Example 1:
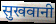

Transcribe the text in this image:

सुखवानी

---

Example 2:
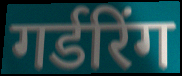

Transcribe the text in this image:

गर्डरिंग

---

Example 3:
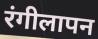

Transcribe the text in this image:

रंगीलापन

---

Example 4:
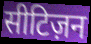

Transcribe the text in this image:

सीटिज़न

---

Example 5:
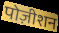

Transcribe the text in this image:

पोज़ीशन